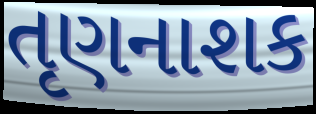
તૃણનાશક